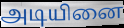
அடியினை